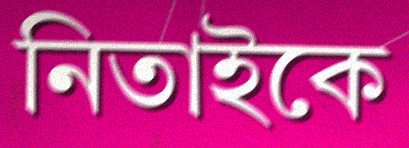
নিতাইকে